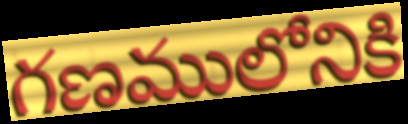
గణములోనికి